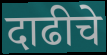
दाढीचे